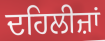
ਦਹਿਲੀਜ਼ਾਂ